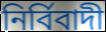
নির্বিবাদী